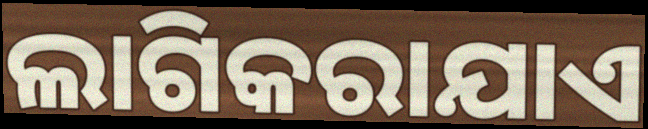
ଲାଗିକରାଯାଏ